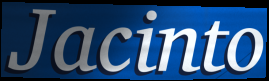
Jacinto